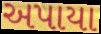
અપાયા